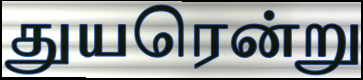
துயரென்று